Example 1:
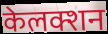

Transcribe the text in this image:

केलक्शन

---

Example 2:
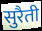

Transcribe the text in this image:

सुरैती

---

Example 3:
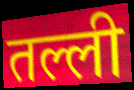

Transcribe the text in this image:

तल्ली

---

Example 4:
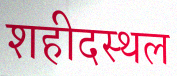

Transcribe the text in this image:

शहीदस्थल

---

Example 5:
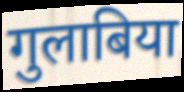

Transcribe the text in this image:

गुलाबिया